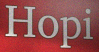
Hopi